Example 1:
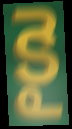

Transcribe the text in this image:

కై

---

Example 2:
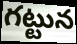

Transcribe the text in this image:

గట్టున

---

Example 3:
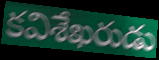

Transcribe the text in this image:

కవిశేఖరుడు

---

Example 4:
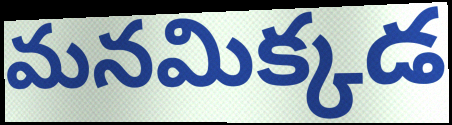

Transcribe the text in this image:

మనమిక్కడ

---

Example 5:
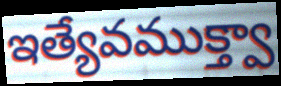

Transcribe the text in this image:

ఇత్యేవముక్త్వా